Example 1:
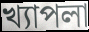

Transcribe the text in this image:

খ্যাপলা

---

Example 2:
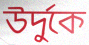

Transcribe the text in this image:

উর্দুকে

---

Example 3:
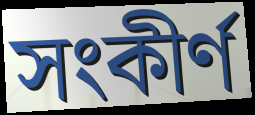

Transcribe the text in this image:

সংকীর্ণ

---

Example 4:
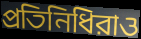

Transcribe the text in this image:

প্রতিনিধিরাও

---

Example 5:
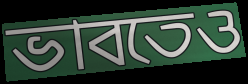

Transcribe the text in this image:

ভাবতেও